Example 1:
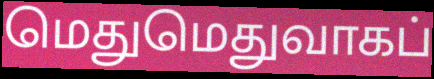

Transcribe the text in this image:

மெதுமெதுவாகப்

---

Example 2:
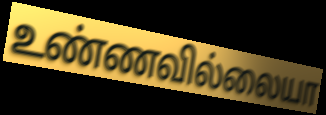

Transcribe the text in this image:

உண்ணவில்லையா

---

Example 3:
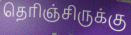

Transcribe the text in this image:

தெரிஞ்சிருக்கு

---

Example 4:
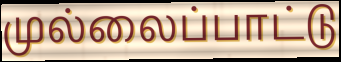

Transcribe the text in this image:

முல்லைப்பாட்டு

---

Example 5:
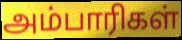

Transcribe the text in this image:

அம்பாரிகள்